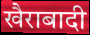
खैराबादी